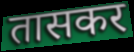
तासकर